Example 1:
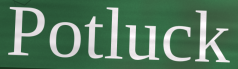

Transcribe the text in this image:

Potluck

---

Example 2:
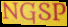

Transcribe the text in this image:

NGSP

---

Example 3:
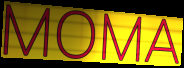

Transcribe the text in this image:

MOMA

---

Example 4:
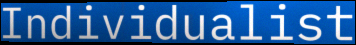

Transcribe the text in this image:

Individualist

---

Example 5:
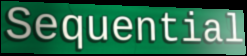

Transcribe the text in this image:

Sequential